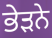
ਭੇੜਨੇ